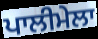
ਪਾਲੀਮੇਲਾ